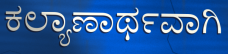
ಕಲ್ಯಾಣಾರ್ಥವಾಗಿ